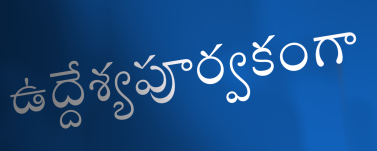
ఉద్దేశ్యపూర్వకంగా